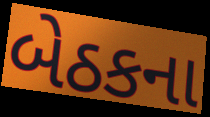
બેઠકના